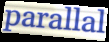
parallal